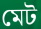
মেট